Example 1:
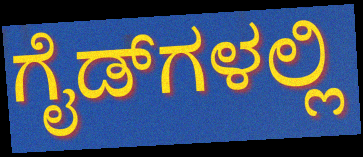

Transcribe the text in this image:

ಗೈಡ್‌ಗಳಲ್ಲಿ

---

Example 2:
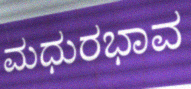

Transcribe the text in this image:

ಮಧುರಭಾವ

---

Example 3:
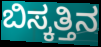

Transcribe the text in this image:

ಬಿಸ್ಕತ್ತಿನ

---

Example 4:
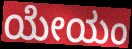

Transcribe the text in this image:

ಯೇಯಂ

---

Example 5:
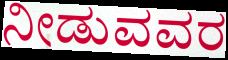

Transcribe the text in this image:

ನೀಡುವವರ